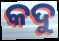
କଦୁ